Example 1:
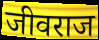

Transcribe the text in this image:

जीवराज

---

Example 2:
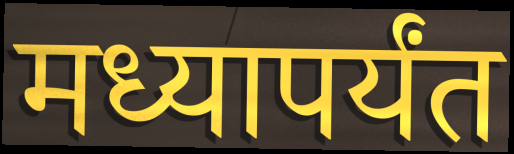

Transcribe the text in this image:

मध्यापर्यंत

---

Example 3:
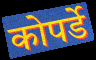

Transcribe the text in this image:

कोपर्डे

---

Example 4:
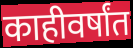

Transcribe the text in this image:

काहीवर्षांत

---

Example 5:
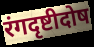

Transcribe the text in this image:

रंगदृष्टीदोष